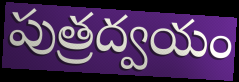
పుత్రద్వయం